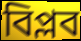
বিপ্লব